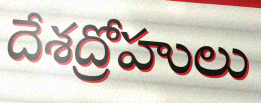
దేశద్రోహులు